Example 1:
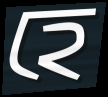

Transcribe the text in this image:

হে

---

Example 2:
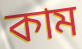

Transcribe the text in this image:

কাম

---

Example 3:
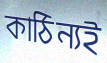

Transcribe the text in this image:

কাঠিন্যই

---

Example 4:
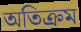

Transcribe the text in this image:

অতিক্ৰম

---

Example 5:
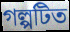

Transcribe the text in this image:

গল্পটিত